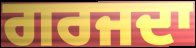
ਗਰਜਦਾ